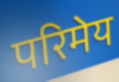
परिमेय